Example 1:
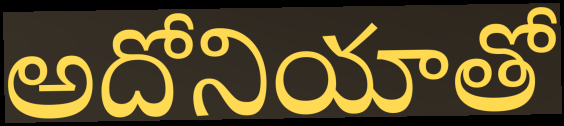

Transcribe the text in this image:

అదోనియాతో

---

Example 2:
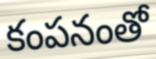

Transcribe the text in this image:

కంపనంతో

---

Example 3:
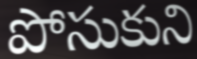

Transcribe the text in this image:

పోసుకుని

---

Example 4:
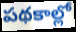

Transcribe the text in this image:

పథకాల్లో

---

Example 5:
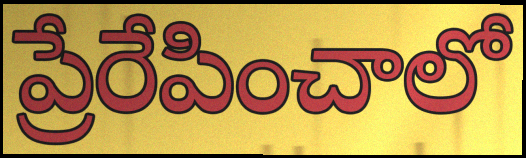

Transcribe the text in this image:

ప్రేరేపించాలో